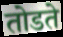
तोडते